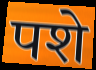
पशे